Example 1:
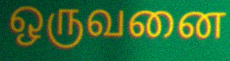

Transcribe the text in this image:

ஒருவனை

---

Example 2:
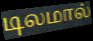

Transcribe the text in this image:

டிலமால்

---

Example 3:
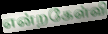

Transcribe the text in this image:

என்றகேள்வி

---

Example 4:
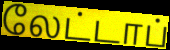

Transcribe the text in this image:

லேட்டாப்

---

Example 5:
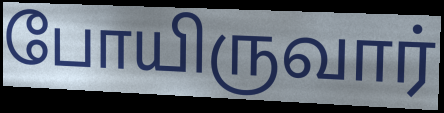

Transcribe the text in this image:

போயிருவார்